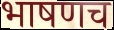
भाषणच